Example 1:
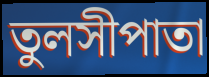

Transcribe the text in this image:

তুলসীপাতা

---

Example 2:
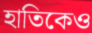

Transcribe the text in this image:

হাতিকেও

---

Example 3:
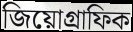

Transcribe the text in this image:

জিয়োগ্রাফিক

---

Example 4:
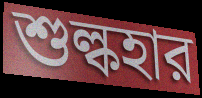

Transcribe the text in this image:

শুল্কহার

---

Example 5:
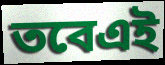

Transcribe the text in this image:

তবেএই